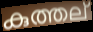
കുത്തല്